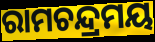
ରାମଚନ୍ଦ୍ରମୟ